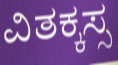
ವಿತಕ್ಕಸ್ಸ